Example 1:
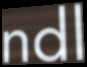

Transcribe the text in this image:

ndl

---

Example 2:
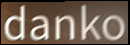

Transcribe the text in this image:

danko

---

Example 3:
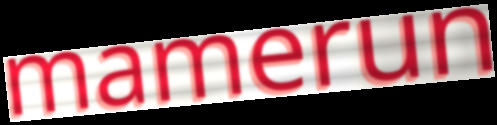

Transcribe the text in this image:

mamerun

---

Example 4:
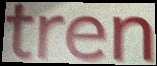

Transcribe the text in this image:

tren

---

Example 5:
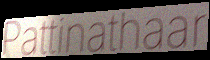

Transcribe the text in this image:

Pattinathaar